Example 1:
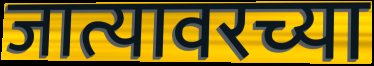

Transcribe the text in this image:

जात्यावरच्या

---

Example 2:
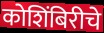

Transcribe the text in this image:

कोशिंबिरीचे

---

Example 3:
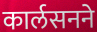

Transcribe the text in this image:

कार्लसनने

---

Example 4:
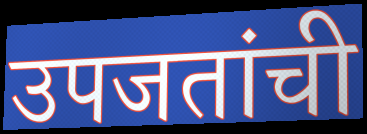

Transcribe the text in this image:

उपजतांची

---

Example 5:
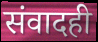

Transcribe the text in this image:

संवादही